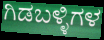
ಗಿಡಬಳ್ಳಿಗಳ